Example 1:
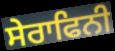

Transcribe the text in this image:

ਸੇਰਾਫਿਨੀ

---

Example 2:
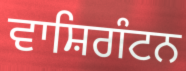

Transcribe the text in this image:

ਵਾਸ਼ਿਗੰਟਨ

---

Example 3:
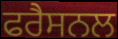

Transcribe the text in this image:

ਫਰੈਸਨਲ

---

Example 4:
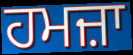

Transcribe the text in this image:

ਹਮਜ਼ਾ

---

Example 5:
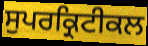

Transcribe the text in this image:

ਸੁਪਰਕ੍ਰਿਟੀਕਲ